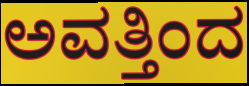
ಅವತ್ತಿಂದ